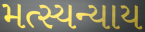
મત્સ્યન્યાય